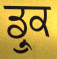
ਡ੍ਰੁਕ